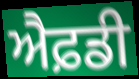
ਐਫ਼ਡੀ